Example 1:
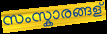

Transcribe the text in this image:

സംസ്കാരങ്ങള്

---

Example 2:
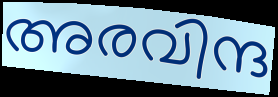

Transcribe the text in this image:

അരവിന്ദ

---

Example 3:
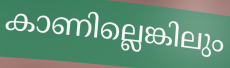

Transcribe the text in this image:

കാണില്ലെങ്കിലും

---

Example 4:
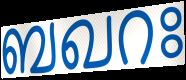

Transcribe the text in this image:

ബഖറഃ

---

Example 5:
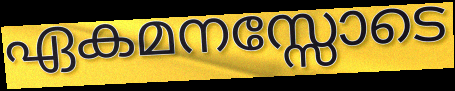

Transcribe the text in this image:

ഏകമനസ്സോടെ